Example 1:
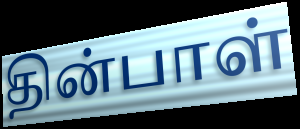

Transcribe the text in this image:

தின்பாள்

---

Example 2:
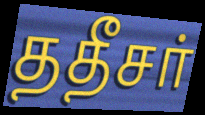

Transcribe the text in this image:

ததீசர்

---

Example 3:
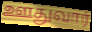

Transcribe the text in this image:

ஊதுவார்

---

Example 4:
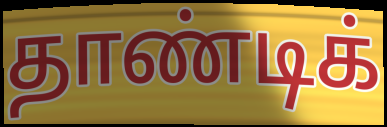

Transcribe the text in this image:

தாண்டிக்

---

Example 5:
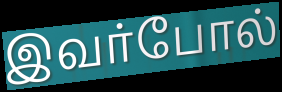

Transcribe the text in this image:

இவர்போல்